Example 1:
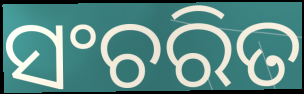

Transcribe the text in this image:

ସଂଚରିତ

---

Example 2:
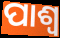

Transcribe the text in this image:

ପାଶ୍ୱ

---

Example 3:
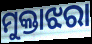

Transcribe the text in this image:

ମୁକ୍ତାଝରା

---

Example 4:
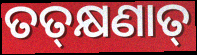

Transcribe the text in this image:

ତତ୍‍କ୍ଷଣାତ୍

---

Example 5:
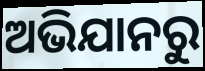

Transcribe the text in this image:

ଅଭିଯାନରୁ